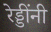
रेड्डींनी